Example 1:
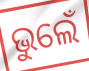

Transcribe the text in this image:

ଭୁଲେଁ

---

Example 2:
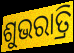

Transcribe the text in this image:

ଶୁଭରାତ୍ରି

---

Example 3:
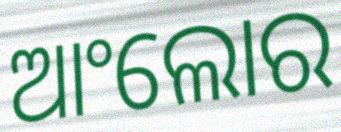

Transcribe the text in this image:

ଆଂଲୋର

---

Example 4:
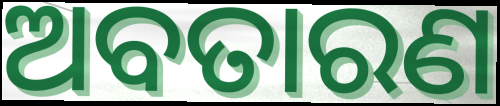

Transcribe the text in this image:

ଅବତାରଣ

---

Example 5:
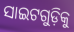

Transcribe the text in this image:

ସାଇଟଗୁଡ଼ିକୁ